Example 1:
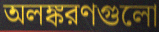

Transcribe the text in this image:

অলঙ্করণগুলো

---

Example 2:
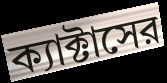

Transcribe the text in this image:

ক্যাক্টাসের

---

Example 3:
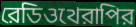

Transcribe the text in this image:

রেডিওথেরাপির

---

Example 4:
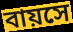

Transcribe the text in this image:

বায়সে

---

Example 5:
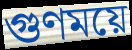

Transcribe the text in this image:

গুণময়ে